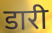
डारी